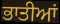
ਭਾਤੀਆਂ